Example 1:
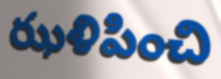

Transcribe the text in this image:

ఝళిపించి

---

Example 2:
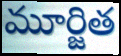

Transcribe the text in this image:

మూర్జిత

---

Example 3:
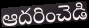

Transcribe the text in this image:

ఆదరించెడి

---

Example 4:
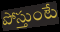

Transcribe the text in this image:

పోస్తుంటే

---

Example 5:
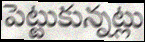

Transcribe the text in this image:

పెట్టుకున్నట్లు